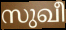
സുഖീ